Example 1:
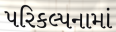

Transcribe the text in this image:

પરિકલ્પનામાં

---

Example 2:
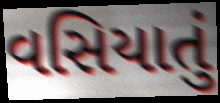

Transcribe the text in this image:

વસિયાતું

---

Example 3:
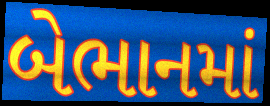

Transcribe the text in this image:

બેભાનમાં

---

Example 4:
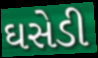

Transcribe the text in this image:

ઘસેડી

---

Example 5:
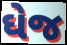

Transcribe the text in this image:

ઘેજ